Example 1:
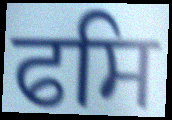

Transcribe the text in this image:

ਫਸਿ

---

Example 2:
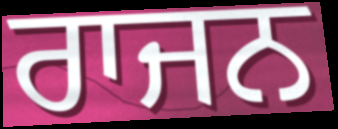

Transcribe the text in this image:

ਰਾਜਨ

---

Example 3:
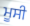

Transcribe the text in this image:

ਮੂਸੀ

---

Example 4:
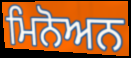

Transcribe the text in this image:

ਮਿਨੋਅਨ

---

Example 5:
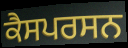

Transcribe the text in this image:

ਕੈਸਪਰਸਨ